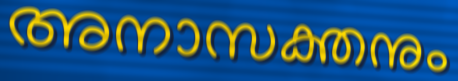
അനാസക്തനും